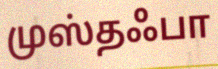
முஸ்தஃபா